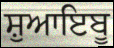
ਸ਼ੁਆਇਬੂ